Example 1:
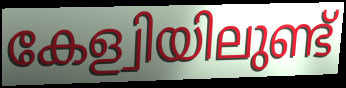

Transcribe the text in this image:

കേള്വിയിലുണ്ട്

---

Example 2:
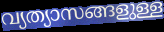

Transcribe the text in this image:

വ്യത്യാസങ്ങളുള്ള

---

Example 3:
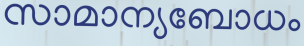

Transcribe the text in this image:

സാമാന്യബോധം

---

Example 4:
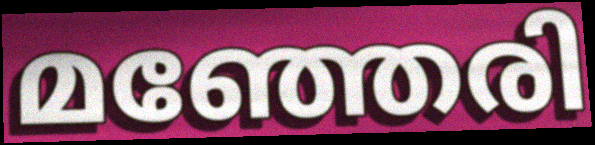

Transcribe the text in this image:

മഞ്ഞേരി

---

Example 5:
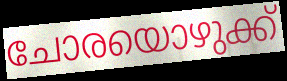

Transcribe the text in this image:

ചോരയൊഴുക്ക്